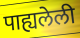
पाह्यलेली